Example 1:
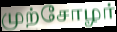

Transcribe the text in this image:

முற்சோழர்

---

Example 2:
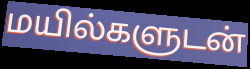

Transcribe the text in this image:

மயில்களுடன்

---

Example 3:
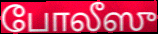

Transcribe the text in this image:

போலீஸு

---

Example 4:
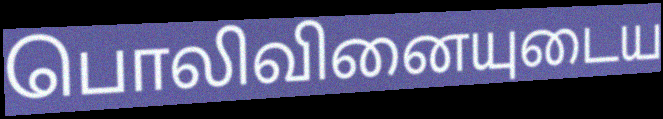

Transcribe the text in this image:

பொலிவினையுடைய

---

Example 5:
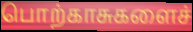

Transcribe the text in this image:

பொற்காசுகளைச்